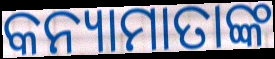
କନ୍ୟାମାତାଙ୍କ